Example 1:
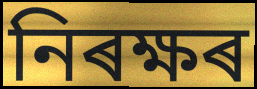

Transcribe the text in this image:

নিৰক্ষৰ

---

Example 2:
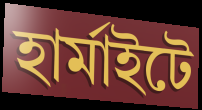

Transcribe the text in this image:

হাৰ্মাইটে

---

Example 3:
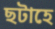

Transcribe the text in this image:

ছটাহে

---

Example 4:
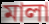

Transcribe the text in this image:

মালা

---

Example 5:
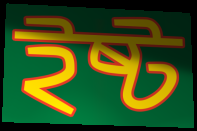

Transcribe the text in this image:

ইষ্ট